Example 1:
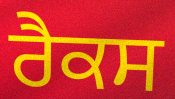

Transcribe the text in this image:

ਰੈਕਸ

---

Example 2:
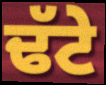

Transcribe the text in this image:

ਢੱਟੇ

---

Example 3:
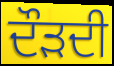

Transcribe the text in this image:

ਦੌੜਦੀ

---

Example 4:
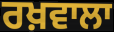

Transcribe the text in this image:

ਰਖ਼ਵਾਲਾ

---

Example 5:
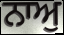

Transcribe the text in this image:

ਨਾਅੁ